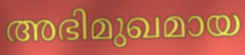
അഭിമുഖമായ